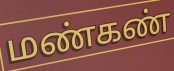
மண்கண்